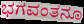
ಭಗವಂತನೂ